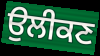
ਉਲੀਕਣ